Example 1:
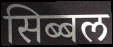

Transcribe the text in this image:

सिब्बल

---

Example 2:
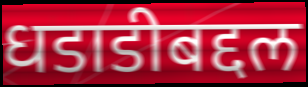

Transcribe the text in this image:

धडाडीबद्दल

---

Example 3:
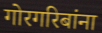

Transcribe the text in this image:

गोरगरिबांना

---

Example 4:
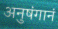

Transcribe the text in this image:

अनुषंगानं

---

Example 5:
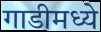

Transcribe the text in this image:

गाडीमध्ये